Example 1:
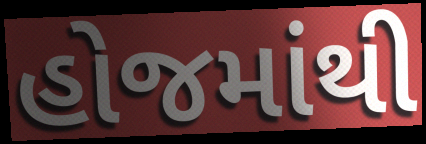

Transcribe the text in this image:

હોજમાંથી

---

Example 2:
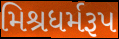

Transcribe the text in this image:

મિશ્રધર્મરૂપ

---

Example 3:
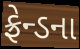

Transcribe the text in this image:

ફ્રેન્ડના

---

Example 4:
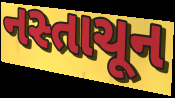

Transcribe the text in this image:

નસ્તાચૂન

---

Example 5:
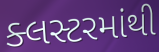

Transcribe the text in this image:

ક્લસ્ટરમાંથી